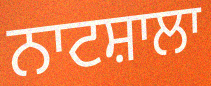
ਨਾਟਸ਼ਾਲਾ